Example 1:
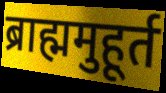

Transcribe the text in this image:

ब्राह्ममुहूर्त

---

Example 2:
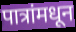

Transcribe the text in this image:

पात्रांमधून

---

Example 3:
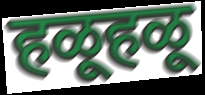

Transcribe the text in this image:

हळूहळू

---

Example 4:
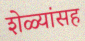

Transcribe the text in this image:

शेळ्यांसह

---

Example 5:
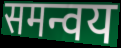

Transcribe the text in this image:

समन्वय